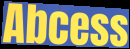
Abcess